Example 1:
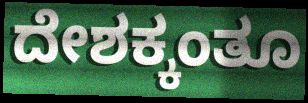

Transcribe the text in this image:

ದೇಶಕ್ಕಂತೂ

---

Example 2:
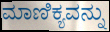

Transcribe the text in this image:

ಮಾಣಿಕ್ಯವನ್ನು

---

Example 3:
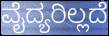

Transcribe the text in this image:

ವೈದ್ಯರಿಲ್ಲದೆ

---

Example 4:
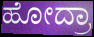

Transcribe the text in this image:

ಹೋದ್ರಾ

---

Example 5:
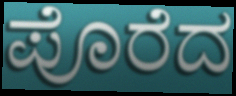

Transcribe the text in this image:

ಪೊರೆದ